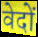
वेदों